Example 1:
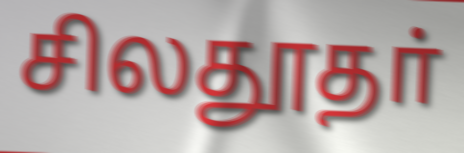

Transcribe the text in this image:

சிலதூதர்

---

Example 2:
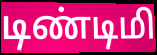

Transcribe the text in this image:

டிண்டிமி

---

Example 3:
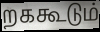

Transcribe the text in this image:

றககூடும்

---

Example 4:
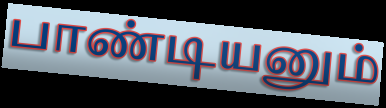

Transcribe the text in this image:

பாண்டியனும்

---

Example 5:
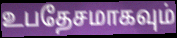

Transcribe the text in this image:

உபதேசமாகவும்